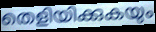
തെളിയിക്കുകയും